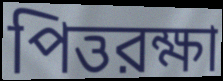
পিত্তরক্ষা